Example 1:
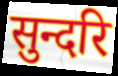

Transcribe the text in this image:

सुन्दरि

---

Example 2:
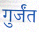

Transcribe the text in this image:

गुर्जंत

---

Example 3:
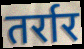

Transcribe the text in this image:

तर्रार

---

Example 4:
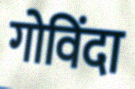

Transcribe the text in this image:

गोविंदा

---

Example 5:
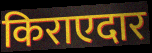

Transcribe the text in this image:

किराएदार